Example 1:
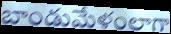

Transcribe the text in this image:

బాండుమేళంలాగా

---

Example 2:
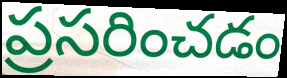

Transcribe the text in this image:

ప్రసరించడం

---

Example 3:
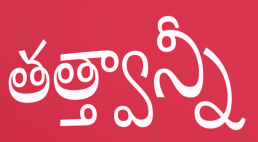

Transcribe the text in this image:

తత్త్వాన్నీ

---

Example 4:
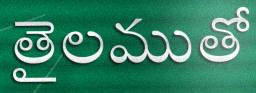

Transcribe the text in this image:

తైలముతో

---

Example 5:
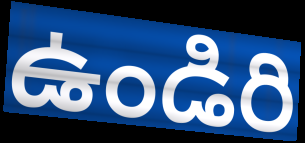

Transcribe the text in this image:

ఉండిరి